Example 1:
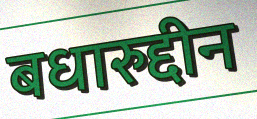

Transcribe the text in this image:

बधारुद्दीन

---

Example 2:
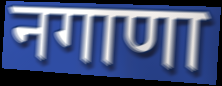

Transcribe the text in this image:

नगाणा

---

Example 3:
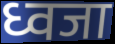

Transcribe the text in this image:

ध्वजा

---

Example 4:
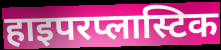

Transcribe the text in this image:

हाइपरप्लास्टिक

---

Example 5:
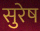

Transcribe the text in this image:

सुरेष